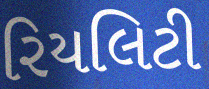
રિયલિટી